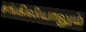
சங்கிலியாலும்